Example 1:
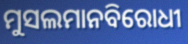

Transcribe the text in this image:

ମୁସଲମାନବିରୋଧୀ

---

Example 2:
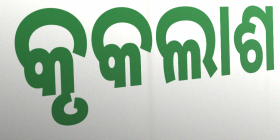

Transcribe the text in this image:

କୃକଲାଶ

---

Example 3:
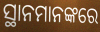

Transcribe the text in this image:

ସ୍ଥାନମାନଙ୍କରେ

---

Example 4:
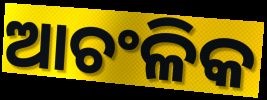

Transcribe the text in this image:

ଆଚଂଳିକ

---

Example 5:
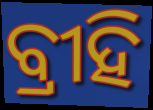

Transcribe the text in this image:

ବ୍ରୀହି